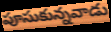
పూసుకున్నవాడు